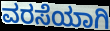
ವರಸೆಯಾಗಿ